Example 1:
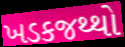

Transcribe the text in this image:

ખડકજથ્થો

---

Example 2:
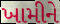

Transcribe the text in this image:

ખામીને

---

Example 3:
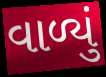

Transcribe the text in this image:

વાળ્યું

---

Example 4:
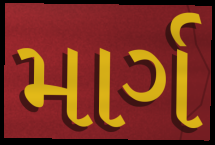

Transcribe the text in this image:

માર્ગ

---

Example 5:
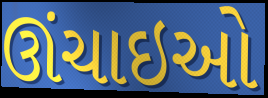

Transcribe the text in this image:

ઊંચાઇઓ